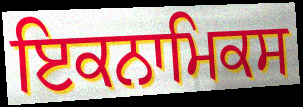
ਇਕਨਾਮਿਕਸ